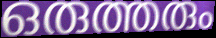
ഒരുത്തരും